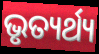
ଭୃତ୍ୟର୍ଥ୍ୟ